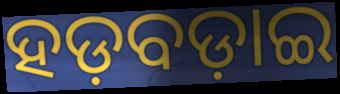
ହଡ଼ବଡ଼ାଇ